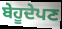
ਬੇਹੂਦੇਪਣ